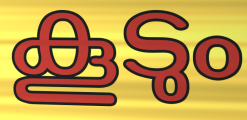
കൂടും